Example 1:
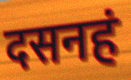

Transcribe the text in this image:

दसनहं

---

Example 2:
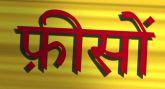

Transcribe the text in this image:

फ़ीसों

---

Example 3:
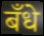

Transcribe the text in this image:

बँधे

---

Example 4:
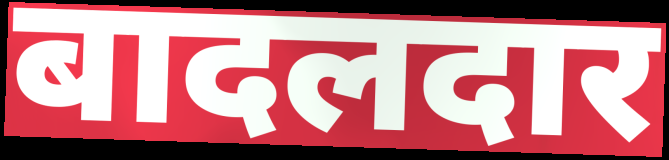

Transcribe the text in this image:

बादलदार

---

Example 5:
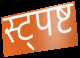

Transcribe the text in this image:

स्ट्पष्ट